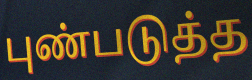
புண்படுத்த